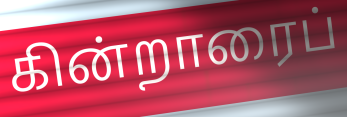
கின்றாரைப்